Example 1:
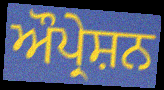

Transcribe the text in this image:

ਔਪ੍ਰੇਸ਼ਨ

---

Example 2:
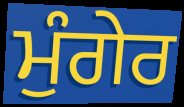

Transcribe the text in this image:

ਮੁੰਗੇਰ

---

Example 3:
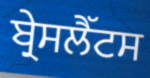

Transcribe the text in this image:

ਬ੍ਰੇਸਲੈੱਟਸ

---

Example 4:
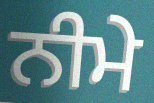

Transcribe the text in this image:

ਨੀਮੇ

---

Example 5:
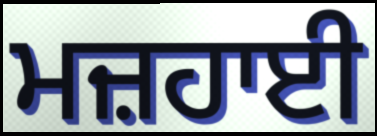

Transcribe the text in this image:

ਮਜ਼ਹਾਈ